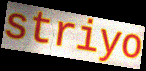
striyo